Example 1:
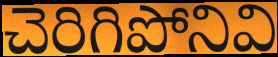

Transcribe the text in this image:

చెరిగిపోనివి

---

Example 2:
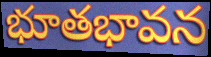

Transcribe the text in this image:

భూతభావన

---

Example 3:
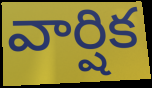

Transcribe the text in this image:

వార్షిక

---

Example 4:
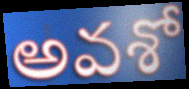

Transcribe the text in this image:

అవశో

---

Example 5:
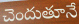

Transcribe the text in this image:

చెందుతూనే